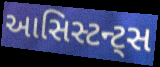
આસિસ્ટન્ટ્સ